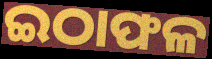
ଇଠାଫଳ